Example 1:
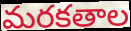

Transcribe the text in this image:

మరకతాల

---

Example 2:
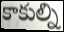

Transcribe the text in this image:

కాకుల్ని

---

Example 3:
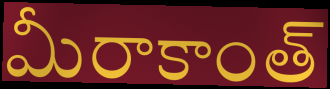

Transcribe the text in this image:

మీరాకాంత్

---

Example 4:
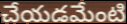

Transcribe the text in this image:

చేయడమేంటి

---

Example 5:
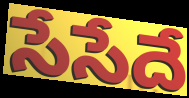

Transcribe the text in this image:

సేసేదే